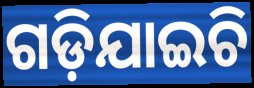
ଗଡ଼ିଯାଇଚି